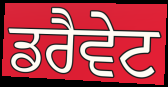
ਡਰੈਵੇਟ